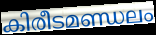
കിരീടമണ്ഡലം